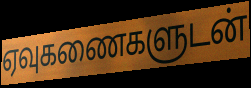
ஏவுகணைகளுடன்